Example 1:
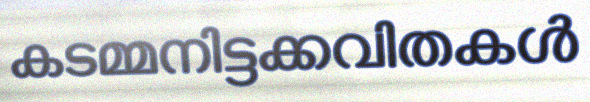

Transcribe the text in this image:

കടമ്മനിട്ടക്കവിതകൾ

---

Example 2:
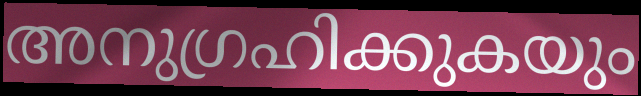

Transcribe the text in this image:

അനുഗ്രഹിക്കുകയും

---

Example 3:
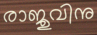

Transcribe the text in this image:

രാജുവിനു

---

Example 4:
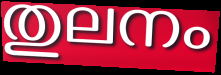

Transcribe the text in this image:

തുലനം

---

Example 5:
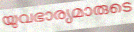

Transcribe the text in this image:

യുവഭാര്യമാരുടെ